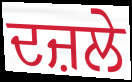
ਦਜ਼ਲੇ